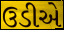
ઉડીએ